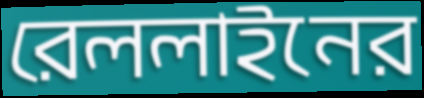
রেললাইনের